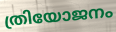
ത്രിയോജനം